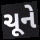
ચૂને